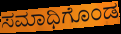
ಸಮಾಧಿಗೊಂಡ